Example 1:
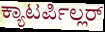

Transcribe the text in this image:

ಕ್ಯಾಟರ್ಪಿಲ್ಲರ್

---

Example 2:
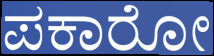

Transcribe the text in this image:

ಪಕಾರೋ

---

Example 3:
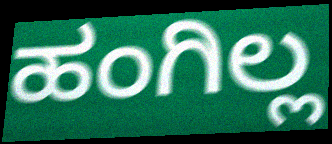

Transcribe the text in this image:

ಹಂಗಿಲ್ಲ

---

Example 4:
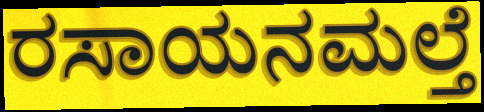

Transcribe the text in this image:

ರಸಾಯನಮಲ್ತೆ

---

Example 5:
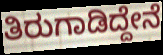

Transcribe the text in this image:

ತಿರುಗಾಡಿದ್ದೇನೆ